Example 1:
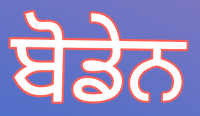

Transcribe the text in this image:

ਬੋਡੇਨ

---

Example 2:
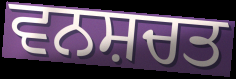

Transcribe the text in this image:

ਵਨਸ਼ਚਤ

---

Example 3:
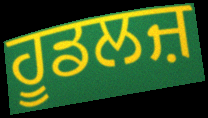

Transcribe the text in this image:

ਹੂਡਲਜ਼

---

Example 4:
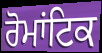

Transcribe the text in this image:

ਰੋਮਾਂਟਿਕ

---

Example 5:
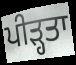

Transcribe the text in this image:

ਪੀੜ੍ਹਤਾ